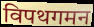
विपथगमन